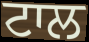
ਟਾਲ